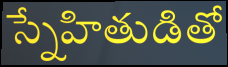
స్నేహితుడితో